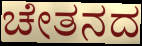
ಚೇತನದ